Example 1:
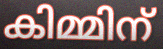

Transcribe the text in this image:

കിമ്മിന്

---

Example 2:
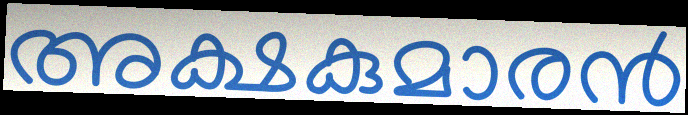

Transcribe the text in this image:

അക്ഷകുമാരൻ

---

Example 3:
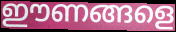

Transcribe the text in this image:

ഈണങ്ങളെ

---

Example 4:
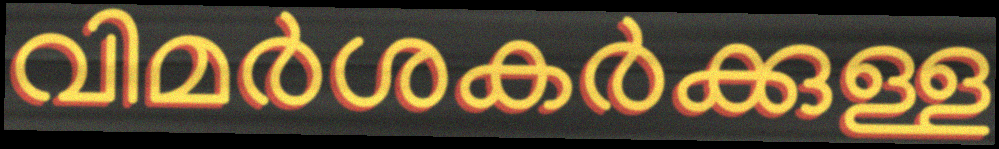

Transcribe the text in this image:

വിമർശകർക്കുള്ള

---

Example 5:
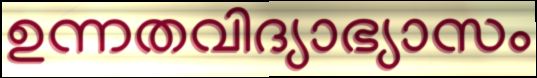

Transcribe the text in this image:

ഉന്നതവിദ്യാഭ്യാസം